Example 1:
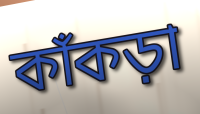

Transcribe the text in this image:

কাঁকড়া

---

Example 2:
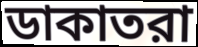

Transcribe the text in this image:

ডাকাতরা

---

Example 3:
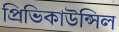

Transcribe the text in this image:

প্রিভিকাউন্সিল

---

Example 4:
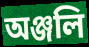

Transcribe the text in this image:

অঞ্জলি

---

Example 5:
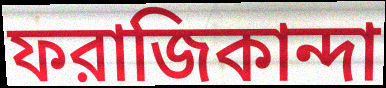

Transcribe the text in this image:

ফরাজিকান্দা